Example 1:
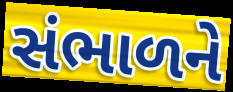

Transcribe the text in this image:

સંભાળને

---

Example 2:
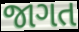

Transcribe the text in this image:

જાગત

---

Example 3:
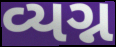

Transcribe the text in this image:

વ્યગ્ન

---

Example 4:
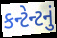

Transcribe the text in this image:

કન્ટેન્ટનું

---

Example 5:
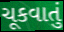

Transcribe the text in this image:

ચૂકવાતું